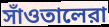
সাঁওতালেরা